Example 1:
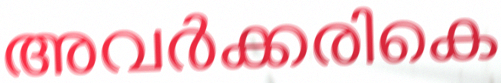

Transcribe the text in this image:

അവർക്കരികെ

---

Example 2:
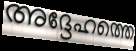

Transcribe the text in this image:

അദ്ദേഹത്തെ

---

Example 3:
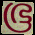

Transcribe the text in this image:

ഭൂ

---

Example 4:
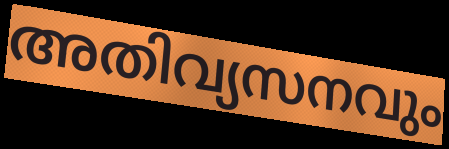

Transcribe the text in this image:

അതിവ്യസനവും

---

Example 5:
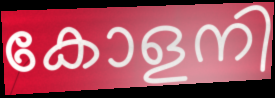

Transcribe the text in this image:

കോളനി